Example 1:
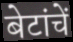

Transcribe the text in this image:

बेटांचें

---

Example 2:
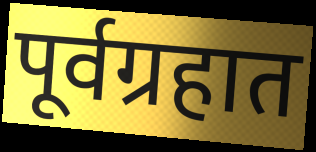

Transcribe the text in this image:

पूर्वग्रहात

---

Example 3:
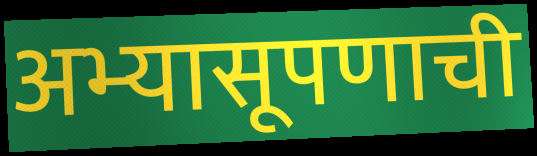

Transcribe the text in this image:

अभ्यासूपणाची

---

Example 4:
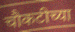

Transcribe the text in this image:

चौकटीच्या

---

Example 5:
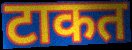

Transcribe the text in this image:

टाकत